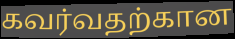
கவர்வதற்கான